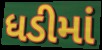
ધડીમાં